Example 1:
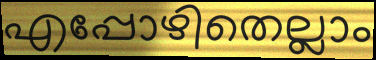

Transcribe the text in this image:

എപ്പോഴിതെല്ലാം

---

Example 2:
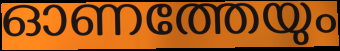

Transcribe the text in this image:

ഓണത്തേയും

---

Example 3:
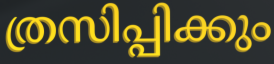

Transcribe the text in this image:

ത്രസിപ്പിക്കും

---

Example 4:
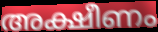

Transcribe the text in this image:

അക്ഷീണം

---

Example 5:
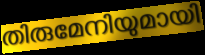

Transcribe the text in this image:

തിരുമേനിയുമായി